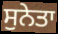
ਸੁਨੇਤਾ